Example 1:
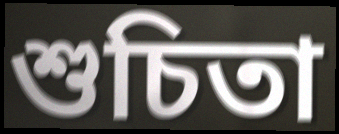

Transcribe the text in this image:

শুচিতা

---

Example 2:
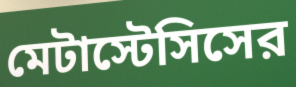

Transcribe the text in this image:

মেটাস্টেসিসের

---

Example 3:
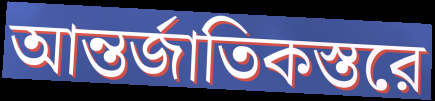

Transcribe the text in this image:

আন্তর্জাতিকস্তরে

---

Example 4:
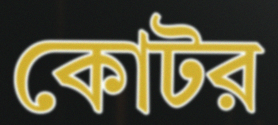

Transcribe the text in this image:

কোটর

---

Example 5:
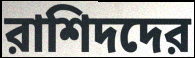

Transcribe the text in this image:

রাশিদদের